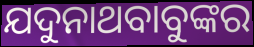
ଯଦୁନାଥବାବୁଙ୍କର